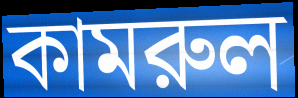
কামরুল